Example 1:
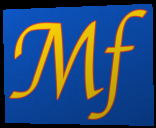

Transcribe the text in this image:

Mf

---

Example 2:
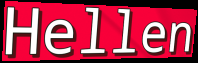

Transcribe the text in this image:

Hellen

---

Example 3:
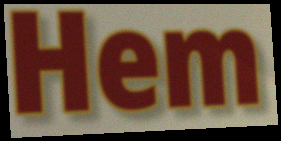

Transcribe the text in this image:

Hem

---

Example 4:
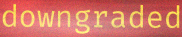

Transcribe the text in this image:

downgraded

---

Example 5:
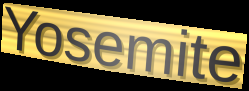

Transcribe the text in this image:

Yosemite